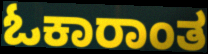
ಓಕಾರಾಂತ